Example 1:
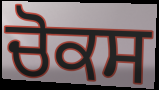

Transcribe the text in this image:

ਚੋਕਸ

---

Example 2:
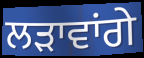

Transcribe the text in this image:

ਲੜਾਵਾਂਗੇ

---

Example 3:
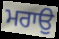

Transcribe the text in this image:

ਮਰਾਉ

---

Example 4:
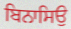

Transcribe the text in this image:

ਬਿਨਾਸਿਉ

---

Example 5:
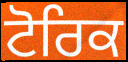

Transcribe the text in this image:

ਟੋਰਿਕ